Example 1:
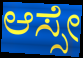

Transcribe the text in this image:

ಆಸ್ಸೇ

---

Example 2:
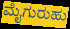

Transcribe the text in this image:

ಮೈಗುರುಹು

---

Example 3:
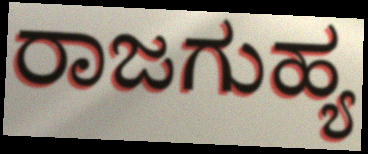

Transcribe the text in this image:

ರಾಜಗುಹ್ಯ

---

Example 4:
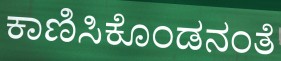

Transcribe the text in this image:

ಕಾಣಿಸಿಕೊಂಡನಂತೆ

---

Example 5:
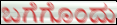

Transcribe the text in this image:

ಬಗೆಗೊಂದು